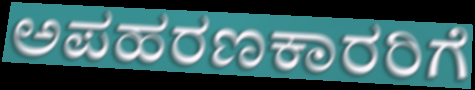
ಅಪಹರಣಕಾರರಿಗೆ